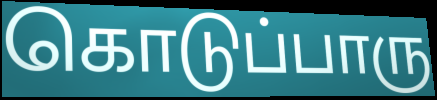
கொடுப்பாரு